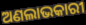
ଅଣଲାଭକାରୀ